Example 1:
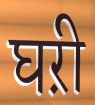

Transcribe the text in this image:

घऱी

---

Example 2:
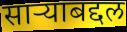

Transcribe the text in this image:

साऱ्याबद्दल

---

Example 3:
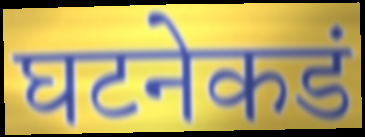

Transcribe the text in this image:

घटनेकडं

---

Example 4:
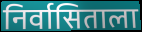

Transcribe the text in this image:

निर्वासिताला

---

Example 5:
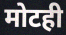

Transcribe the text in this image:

मोटही